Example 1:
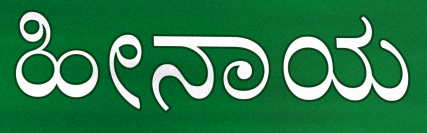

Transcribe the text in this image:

ಹೀನಾಯ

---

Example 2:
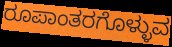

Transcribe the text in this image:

ರೂಪಾಂತರಗೊಳ್ಳುವ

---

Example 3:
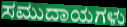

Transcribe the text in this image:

ಸಮುದಾಯಗಳು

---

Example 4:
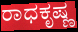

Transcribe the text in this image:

ರಾಧಕೃಷ್ಣ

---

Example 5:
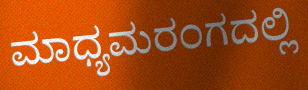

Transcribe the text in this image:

ಮಾಧ್ಯಮರಂಗದಲ್ಲಿ